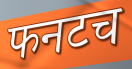
फनटच